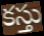
కస్తు